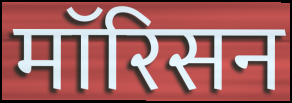
मॉरिसन